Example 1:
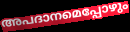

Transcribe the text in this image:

അപദാനമെപ്പോഴും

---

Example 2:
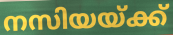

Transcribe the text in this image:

നസിയയ്ക്ക്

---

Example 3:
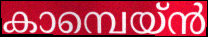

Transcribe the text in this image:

കാമ്പെയ്ൻ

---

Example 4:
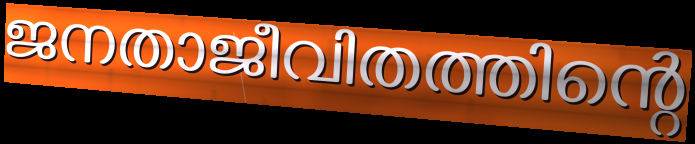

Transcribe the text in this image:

ജനതാജീവിതത്തിന്റെ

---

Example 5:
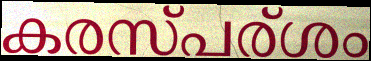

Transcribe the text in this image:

കരസ്പര്ശം